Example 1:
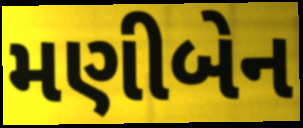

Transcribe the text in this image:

મણીબેન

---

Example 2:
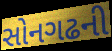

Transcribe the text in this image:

સોનગઢની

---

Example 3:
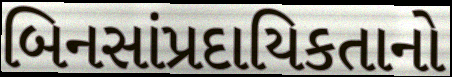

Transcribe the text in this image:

બિનસાંપ્રદાયિકતાનો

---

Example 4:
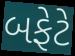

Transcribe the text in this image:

બફેટે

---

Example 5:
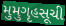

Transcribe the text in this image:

મુમુગૃહસૂચી